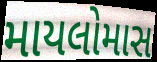
માયલોમાસ